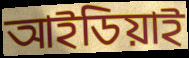
আইডিয়াই